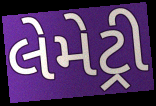
લેમેટ્રી